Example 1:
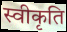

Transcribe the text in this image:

स्‍वीकृति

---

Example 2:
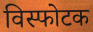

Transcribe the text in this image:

विस्फोटक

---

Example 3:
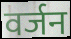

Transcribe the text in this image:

वर्जन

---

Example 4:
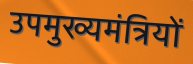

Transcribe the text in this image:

उपमुख्यमंत्रियों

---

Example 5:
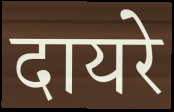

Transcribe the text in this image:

दायरे